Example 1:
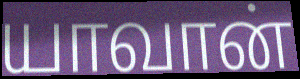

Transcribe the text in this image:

யாவான்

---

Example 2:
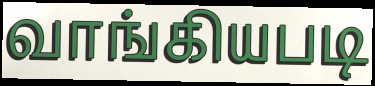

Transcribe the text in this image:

வாங்கியபடி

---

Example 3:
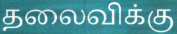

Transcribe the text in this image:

தலைவிக்கு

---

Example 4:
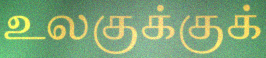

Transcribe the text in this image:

உலகுக்குக்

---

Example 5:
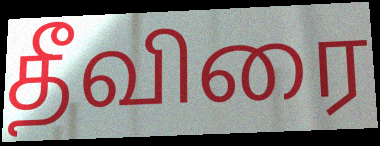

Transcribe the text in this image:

தீவிரை